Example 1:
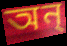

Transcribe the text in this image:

অন্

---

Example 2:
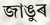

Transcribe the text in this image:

জাঙুৰ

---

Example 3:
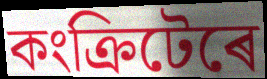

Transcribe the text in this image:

কংক্ৰিটেৰে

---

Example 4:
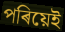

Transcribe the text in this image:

পৰিয়েই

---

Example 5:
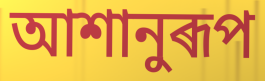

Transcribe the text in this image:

আশানুৰূপ